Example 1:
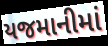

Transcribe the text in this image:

યજમાનીમાં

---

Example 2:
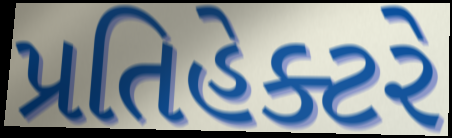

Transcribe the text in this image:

પ્રતિહેક્ટરે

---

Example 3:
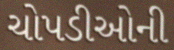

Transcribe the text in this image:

ચોપડીઓની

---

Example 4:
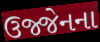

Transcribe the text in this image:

ઉજ્જેનના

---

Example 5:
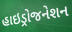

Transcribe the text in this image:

હાઇડ્રોજનેશન